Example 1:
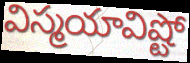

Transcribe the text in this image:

విస్మయావిష్టో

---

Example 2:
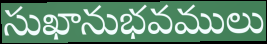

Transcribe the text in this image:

సుఖానుభవములు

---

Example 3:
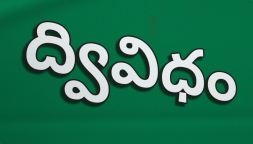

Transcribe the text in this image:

ద్వివిధం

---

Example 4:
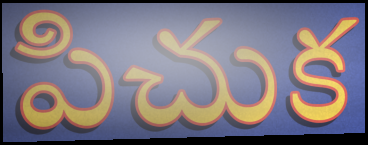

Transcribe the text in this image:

పిచుక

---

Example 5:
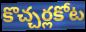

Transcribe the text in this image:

కొచ్చర్లకోట